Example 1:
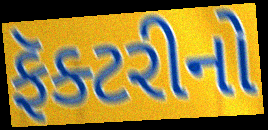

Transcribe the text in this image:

ફૅક્ટરીનો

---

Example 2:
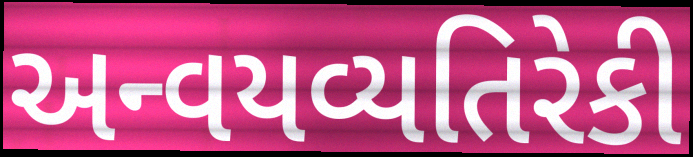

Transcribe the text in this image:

અન્વયવ્યતિરેકી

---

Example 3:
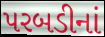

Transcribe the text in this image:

પરબડીનાં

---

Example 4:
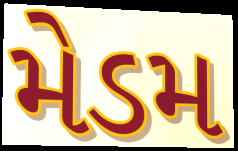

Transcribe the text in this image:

મેડમ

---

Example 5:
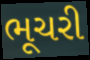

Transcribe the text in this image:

ભૂચરી